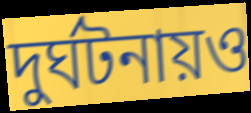
দুর্ঘটনায়ও